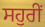
ਸਹੁਰੀਂ